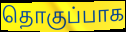
தொகுப்பாக